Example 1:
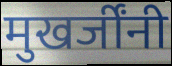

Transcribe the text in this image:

मुखर्जींनी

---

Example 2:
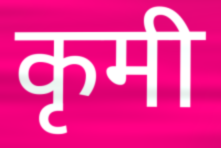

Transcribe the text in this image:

कृमी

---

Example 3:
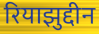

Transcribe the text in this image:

रियाझुद्दीन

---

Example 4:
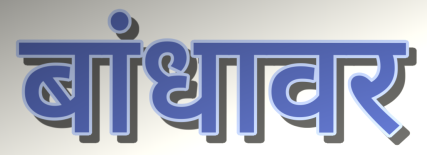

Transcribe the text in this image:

बांधावर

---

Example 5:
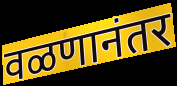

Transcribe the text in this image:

वळणानंतर